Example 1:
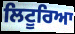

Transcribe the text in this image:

ਲਿਟੂਰਿਆ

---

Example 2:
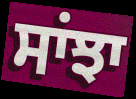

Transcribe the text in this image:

ਸਾਂਝਾ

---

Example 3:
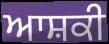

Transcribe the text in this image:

ਆਸ਼ਕੀ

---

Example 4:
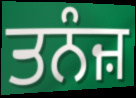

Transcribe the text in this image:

ਤਨੰਜ਼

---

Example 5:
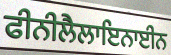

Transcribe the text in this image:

ਫੀਨੀਲੈਲਾਇਨਾਈਨ